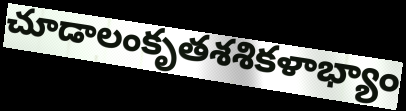
చూడాలంకృతశశికళాభ్యాం